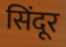
सिंदूर